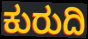
ಕುರುದಿ